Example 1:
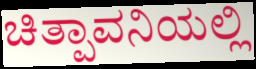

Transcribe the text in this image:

ಚಿತ್ಪಾವನಿಯಲ್ಲಿ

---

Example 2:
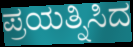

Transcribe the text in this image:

ಪ್ರಯತ್ನಿಸಿದ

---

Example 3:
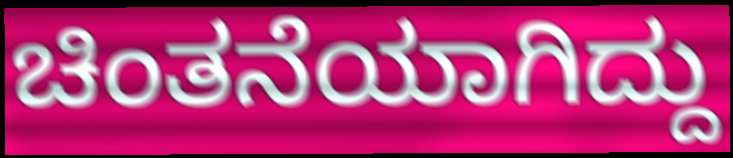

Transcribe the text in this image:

ಚಿಂತನೆಯಾಗಿದ್ದು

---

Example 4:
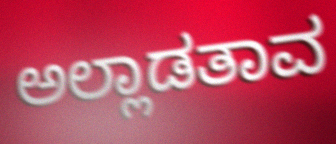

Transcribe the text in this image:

ಅಲ್ಲಾಡತಾವ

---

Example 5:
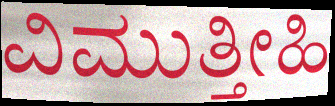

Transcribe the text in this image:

ವಿಮುತ್ತೀಹಿ